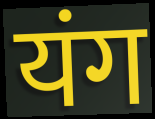
यंग